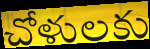
చోళులకు